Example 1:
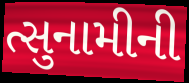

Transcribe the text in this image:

ત્સુનામીની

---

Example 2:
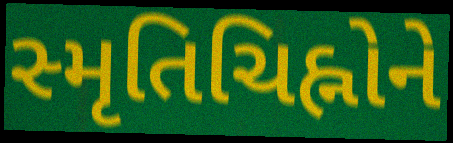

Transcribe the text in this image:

સ્મૃતિચિહ્નોને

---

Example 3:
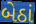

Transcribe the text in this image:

બેઠાં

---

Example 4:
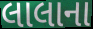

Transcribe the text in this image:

લાલાના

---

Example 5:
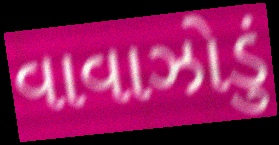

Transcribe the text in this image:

વાવાઝોડું